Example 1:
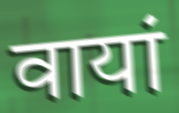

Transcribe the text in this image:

वायां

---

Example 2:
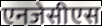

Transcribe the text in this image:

एनजेसीएस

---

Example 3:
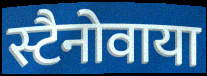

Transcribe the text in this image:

स्टैनोवाया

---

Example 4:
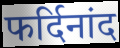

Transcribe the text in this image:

फर्दिनांद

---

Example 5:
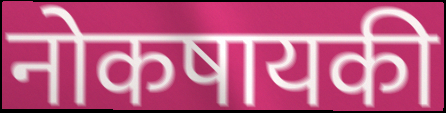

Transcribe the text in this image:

नोकषायकी